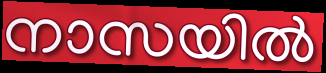
നാസയിൽ